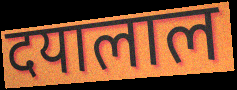
दयालाल